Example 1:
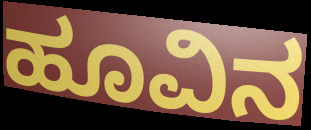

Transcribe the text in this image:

ಹೂವಿನ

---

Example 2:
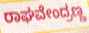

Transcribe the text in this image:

ರಾಘವೇಂದ್ರಣ್ಣ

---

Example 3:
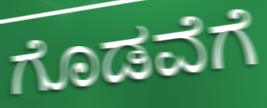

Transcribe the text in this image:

ಗೊಡವೆಗೆ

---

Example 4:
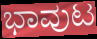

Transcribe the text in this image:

ಭಾವುಟ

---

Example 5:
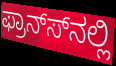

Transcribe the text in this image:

ಫ್ರಾನ್ಸ್‍ನಲ್ಲಿ